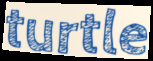
turtle